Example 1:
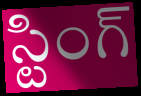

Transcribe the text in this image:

స్టింగ్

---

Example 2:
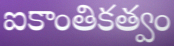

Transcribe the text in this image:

ఐకాంతికత్వం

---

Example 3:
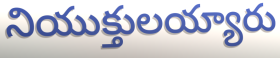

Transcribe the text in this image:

నియుక్తులయ్యారు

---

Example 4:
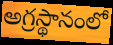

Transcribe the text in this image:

అగ్రస్థానంలో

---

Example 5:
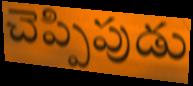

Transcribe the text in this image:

చెప్పిపుడు